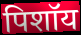
पिशॉय